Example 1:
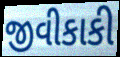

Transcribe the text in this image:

જીવીકાકી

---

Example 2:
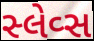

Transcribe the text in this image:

સ્લેવ્સ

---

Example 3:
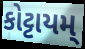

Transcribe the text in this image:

કોટ્ટાયમ્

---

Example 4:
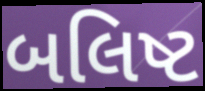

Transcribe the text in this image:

બલિષ્ટ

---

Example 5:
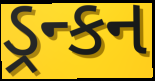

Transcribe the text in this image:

ડ્રન્કન